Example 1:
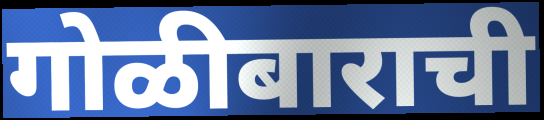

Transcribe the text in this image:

गोळीबाराची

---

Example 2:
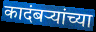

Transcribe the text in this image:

कादंबर्‍यांच्या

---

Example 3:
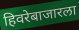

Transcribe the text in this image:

हिवरेबाजारला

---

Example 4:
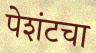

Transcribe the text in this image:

पेशंटचा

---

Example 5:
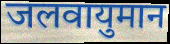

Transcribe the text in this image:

जलवायुमान